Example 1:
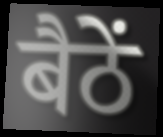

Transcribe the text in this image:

बैठें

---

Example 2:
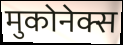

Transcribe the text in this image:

मुकोनेक्स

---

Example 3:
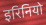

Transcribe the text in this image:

इरिनियो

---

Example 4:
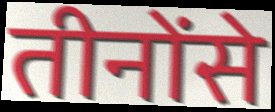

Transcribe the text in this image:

तीनोंसे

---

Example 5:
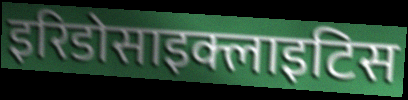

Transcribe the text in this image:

इरिडोसाइक्लाइटिस